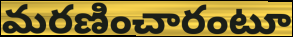
మరణించారంటూ